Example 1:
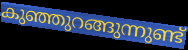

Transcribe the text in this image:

കുഞ്ഞുറങ്ങുന്നുണ്ട്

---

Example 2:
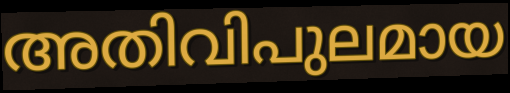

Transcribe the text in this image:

അതിവിപുലമായ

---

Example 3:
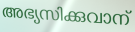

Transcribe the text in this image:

അഭ്യസിക്കുവാന്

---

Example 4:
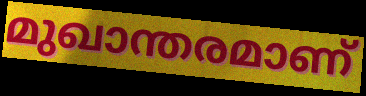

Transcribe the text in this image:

മുഖാന്തരമാണ്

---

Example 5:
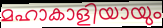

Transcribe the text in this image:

മഹാകാളിയായും